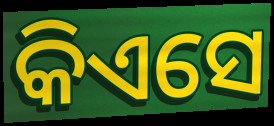
କିଏସେ